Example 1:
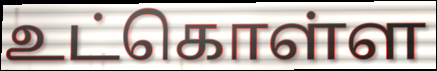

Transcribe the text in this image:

உட்கொள்ள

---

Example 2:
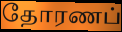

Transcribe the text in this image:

தோரணப்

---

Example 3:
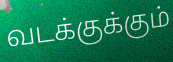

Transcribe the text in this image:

வடக்குக்கும்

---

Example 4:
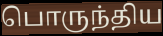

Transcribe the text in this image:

பொருந்திய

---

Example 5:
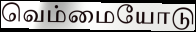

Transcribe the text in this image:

வெம்மையோடு